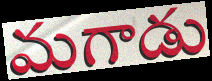
మగాడు